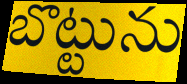
బొట్టును